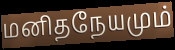
மனிதநேயமும்